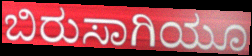
ಬಿರುಸಾಗಿಯೂ